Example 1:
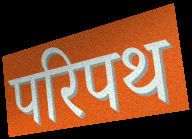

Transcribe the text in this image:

परिपथ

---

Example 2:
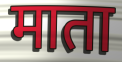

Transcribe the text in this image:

माता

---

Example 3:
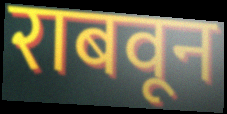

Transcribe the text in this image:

राबवून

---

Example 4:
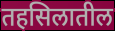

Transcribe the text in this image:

तहसिलातील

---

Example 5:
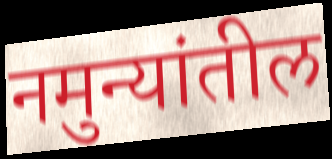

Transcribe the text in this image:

नमुन्यांतील